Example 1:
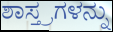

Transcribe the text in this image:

ಶಾಸ್ತ್ರಗಳನ್ನು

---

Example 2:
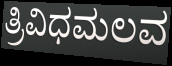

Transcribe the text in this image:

ತ್ರಿವಿಧಮಲವ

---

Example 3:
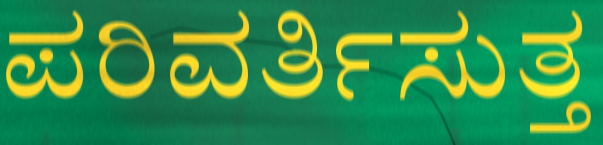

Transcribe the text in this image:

ಪರಿವರ್ತಿಸುತ್ತ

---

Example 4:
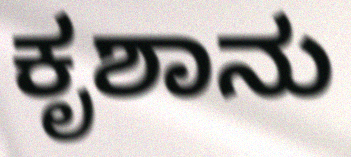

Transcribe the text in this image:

ಕೃಶಾನು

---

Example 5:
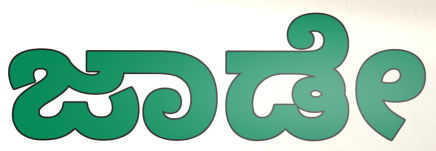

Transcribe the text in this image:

ಜಾಡೇ